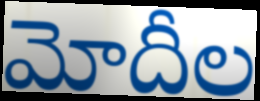
మోదీల